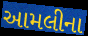
આમલીના